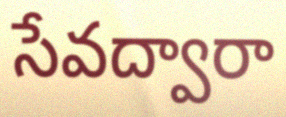
సేవద్వారా